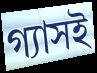
গ্যাসই